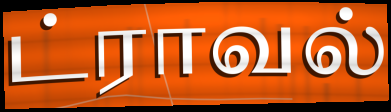
ட்ராவல்